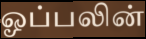
ஓப்பலின்